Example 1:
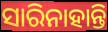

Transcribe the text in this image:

ସାରିନାହାନ୍ତି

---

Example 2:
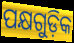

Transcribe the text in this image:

ପକ୍ଷଗୁଡ଼ିକ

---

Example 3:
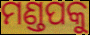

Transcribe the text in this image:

ମଣ୍ଡପକୁ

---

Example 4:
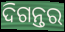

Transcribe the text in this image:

ଦିଗନ୍ତର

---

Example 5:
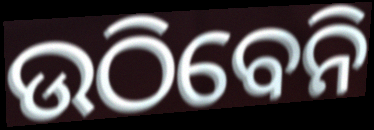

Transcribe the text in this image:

ଉଠିବେନି